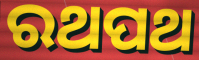
ରଥପଥ